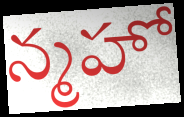
న్మహో